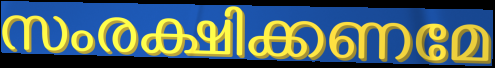
സംരക്ഷിക്കണമേ